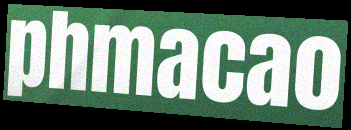
phmacao